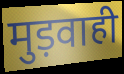
मुड़वाही